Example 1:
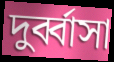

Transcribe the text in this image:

দুর্ব্বাসা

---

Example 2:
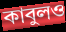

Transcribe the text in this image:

কাবুলও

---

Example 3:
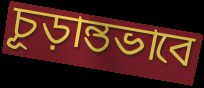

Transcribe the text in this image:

চূড়ান্তভাবে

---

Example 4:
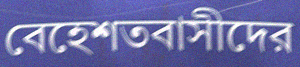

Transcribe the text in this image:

বেহেশতবাসীদের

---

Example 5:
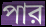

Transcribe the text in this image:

পার